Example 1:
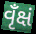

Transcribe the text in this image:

વૃઁક્ષં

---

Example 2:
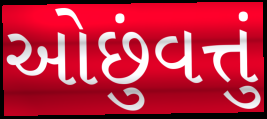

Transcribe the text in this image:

ઓછુંવત્તું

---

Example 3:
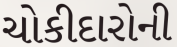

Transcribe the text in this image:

ચોકીદારોની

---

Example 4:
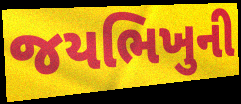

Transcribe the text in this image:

જયભિખુની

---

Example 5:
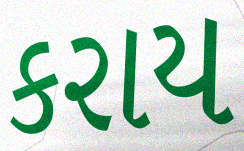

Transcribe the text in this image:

કરાય